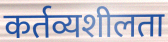
कर्तव्यशीलता